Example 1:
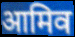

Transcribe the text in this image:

आमिव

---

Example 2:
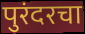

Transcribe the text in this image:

पुरंदरचा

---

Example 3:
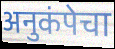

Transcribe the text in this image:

अनुकंपेचा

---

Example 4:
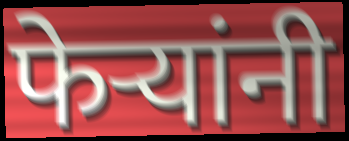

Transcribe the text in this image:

फेऱ्यांनी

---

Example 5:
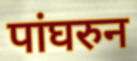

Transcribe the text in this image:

पांघरुन